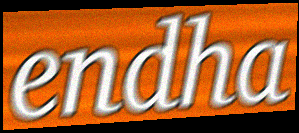
endha